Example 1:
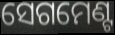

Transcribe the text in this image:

ସେଗମେଣ୍ଟ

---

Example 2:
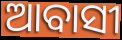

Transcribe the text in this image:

ଆବାସୀ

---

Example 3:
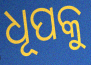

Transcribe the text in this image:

ଧୂପକୁ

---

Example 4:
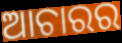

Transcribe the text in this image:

ଆଚାରର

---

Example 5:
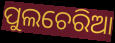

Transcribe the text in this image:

ପୁଲଚେରିଆ